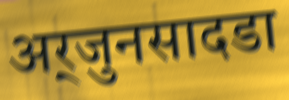
अर्जुनसादडा